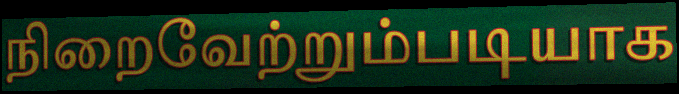
நிறைவேற்றும்படியாக